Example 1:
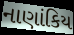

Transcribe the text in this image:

નાણાંકિય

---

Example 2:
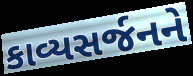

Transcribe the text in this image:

કાવ્યસર્જનને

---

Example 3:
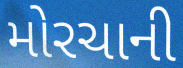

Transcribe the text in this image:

મોરચાની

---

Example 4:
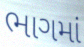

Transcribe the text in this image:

ભાગમાં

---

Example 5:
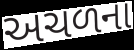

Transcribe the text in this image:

અચળના